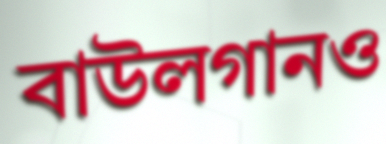
বাউলগানও